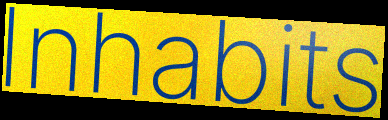
Inhabits